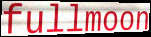
fullmoon